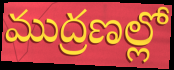
ముద్రణల్లో